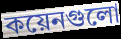
কয়েনগুলো